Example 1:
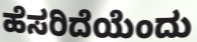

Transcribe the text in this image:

ಹೆಸರಿದೆಯೆಂದು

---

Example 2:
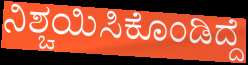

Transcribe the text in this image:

ನಿಶ್ಚಯಿಸಿಕೊಂಡಿದ್ದೆ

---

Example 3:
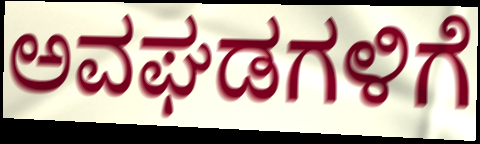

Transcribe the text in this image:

ಅವಘಡಗಳಿಗೆ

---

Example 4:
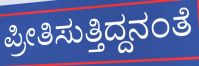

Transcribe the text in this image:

ಪ್ರೀತಿಸುತ್ತಿದ್ದನಂತೆ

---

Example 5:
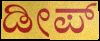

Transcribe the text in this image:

ಡೀಪ್